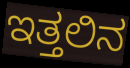
ಇತ್ತಲಿನ